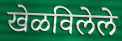
खेळविलेले